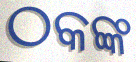
ଠକଙ୍କ